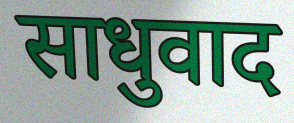
साधुवाद